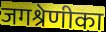
जगश्रेणीका